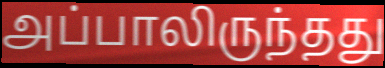
அப்பாலிருந்தது